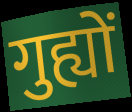
गुह्यों